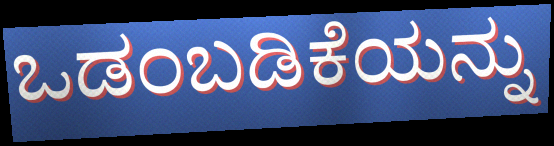
ಒಡಂಬಡಿಕೆಯನ್ನು